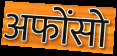
अफोंसो